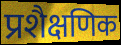
प्रशैक्षणिक